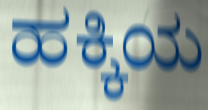
ಹಕ್ಕಿಯ